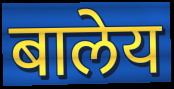
बालेय